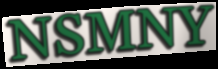
NSMNY